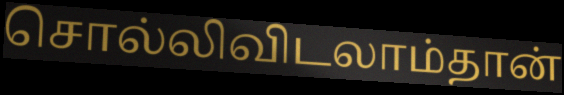
சொல்லிவிடலாம்தான்